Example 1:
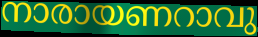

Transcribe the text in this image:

നാരായണറാവു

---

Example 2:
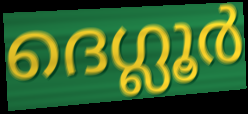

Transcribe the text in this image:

ദെഗ്ലൂർ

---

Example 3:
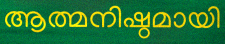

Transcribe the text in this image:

ആത്മനിഷ്ഠമായി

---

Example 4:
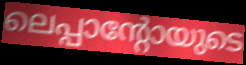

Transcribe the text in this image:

ലെപ്പാന്റോയുടെ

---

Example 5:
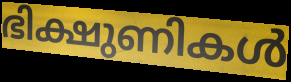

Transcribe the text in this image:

ഭിക്ഷുണികൾ